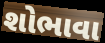
શોભાવા